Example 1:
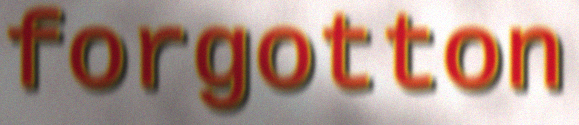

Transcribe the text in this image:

forgotton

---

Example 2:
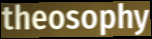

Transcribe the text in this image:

theosophy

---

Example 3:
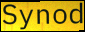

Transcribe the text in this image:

Synod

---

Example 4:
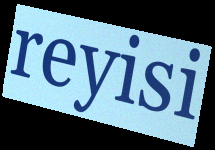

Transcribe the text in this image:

reyisi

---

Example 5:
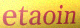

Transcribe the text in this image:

etaoin